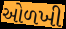
ઓળખી